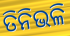
ତିନିଭଳି